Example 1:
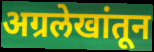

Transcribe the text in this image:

अग्रलेखांतून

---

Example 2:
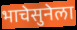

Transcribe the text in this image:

भाचेसुनेला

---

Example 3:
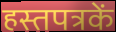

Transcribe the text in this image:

हस्तपत्रकें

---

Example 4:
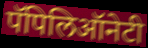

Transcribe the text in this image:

पॅपिलिऑनेटी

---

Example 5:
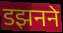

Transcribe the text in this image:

डझनने